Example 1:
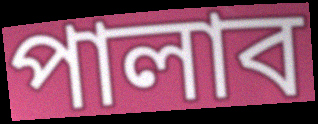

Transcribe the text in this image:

পালাব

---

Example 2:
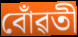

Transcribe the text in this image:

বোঁৱতী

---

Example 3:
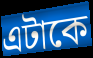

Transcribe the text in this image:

এটাকে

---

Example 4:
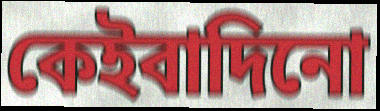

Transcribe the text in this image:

কেইবাদিনো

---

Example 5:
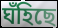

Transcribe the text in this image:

ঘঁহিছে